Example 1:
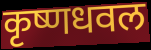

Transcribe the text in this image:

कृष्णधवल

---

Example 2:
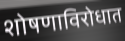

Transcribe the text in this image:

शोषणाविरोधात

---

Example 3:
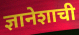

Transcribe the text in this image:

ज्ञानेशाची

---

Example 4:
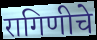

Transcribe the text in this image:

रागिणीचे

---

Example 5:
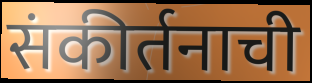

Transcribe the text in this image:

संकीर्तनाची